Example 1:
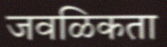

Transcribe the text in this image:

जवळिकता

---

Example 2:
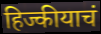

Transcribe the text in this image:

हिज्कीयाचं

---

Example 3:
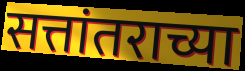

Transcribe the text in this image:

सत्तांतराच्या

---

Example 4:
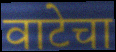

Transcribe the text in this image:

वाटेचा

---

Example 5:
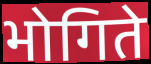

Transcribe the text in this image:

भोगिते